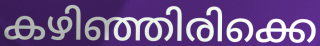
കഴിഞ്ഞിരിക്കെ